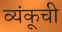
व्यंकूची